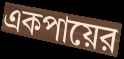
একপায়ের